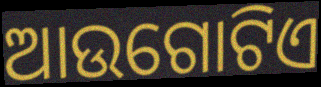
ଆଉଗୋଟିଏ